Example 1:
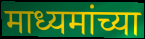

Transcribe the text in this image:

माध्यमांच्या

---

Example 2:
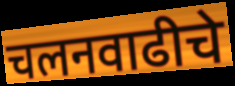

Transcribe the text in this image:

चलनवाढीचे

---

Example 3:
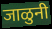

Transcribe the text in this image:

जाळुनी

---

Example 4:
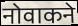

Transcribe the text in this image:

नोवाकने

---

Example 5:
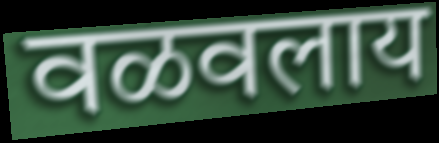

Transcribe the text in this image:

वळवलाय